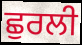
ਛੁਰਲੀ